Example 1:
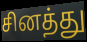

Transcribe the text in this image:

சினத்து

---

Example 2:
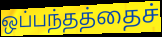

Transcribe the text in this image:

ஒப்பந்தத்தைச்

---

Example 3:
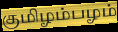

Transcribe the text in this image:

குமிழம்பழம்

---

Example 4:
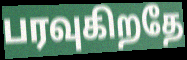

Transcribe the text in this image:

பரவுகிறதே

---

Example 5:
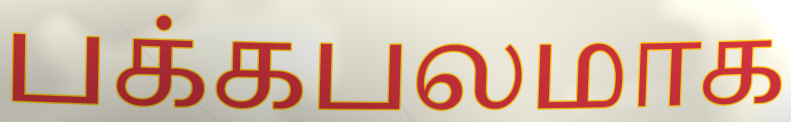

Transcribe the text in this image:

பக்கபலமாக